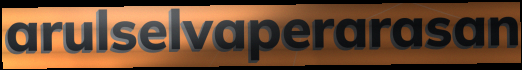
arulselvaperarasan